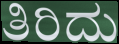
ತಿರಿದು